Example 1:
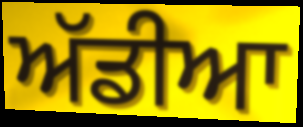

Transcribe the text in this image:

ਅੱਡੀਆ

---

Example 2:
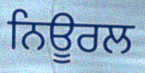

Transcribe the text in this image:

ਨਿਊਰਲ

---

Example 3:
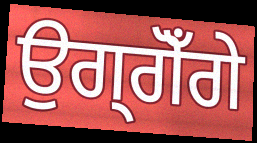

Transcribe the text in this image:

ਉਗ੍ਗੋਁਗੇ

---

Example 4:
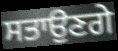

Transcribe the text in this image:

ਸਤਾਉਣਗੇ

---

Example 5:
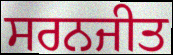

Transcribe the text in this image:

ਸਰਨਜੀਤ